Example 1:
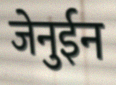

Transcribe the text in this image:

जेनुईन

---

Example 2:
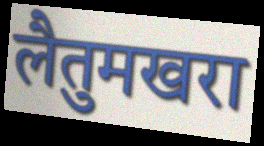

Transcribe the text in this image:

लैतुमखरा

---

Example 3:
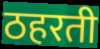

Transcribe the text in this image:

ठहरती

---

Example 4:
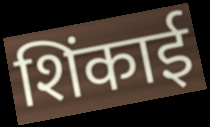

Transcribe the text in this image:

शिंकाई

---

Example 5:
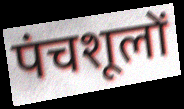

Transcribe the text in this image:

पंचशूलों